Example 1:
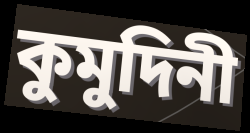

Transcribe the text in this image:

কুমুদিনী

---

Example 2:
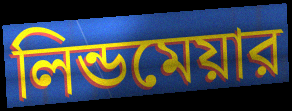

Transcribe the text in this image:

লিন্ডমেয়ার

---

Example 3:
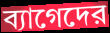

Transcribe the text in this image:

ব্যাগেদের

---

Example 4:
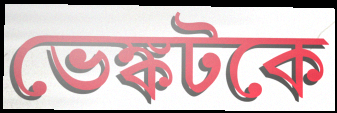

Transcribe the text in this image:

ভেঙ্কটকে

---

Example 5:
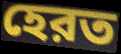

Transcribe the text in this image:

হেরত